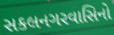
સકલનગરવાસિનો